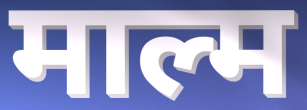
माल्म